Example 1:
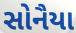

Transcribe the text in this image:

સોનૈયા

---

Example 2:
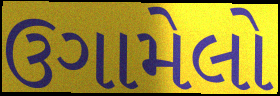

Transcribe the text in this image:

ઉગામેલો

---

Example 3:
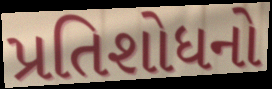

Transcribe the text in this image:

પ્રતિશોધનો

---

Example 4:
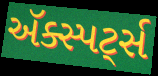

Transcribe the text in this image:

ઍક્સ્પર્ટ્સ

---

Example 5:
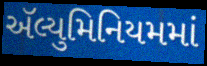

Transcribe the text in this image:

ઍલ્યુમિનિયમમાં